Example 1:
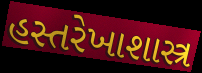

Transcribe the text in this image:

હસ્તરેખાશાસ્ત્ર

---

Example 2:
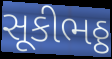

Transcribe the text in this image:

સૂકીભઠ્ઠ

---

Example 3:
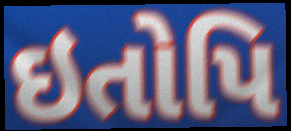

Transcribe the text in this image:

ઇતોપિ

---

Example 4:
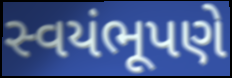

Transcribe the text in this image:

સ્વયંભૂપણે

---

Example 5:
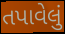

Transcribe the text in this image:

તપાવેલું